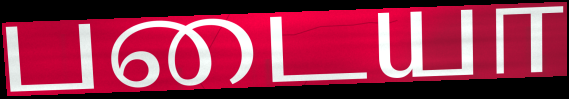
படையா